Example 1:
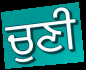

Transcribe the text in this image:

ਚੁਣੀ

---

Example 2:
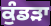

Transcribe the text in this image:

ਕੁੰਡੜਾ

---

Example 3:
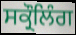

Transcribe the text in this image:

ਸਕ੍ਰੌਲਿੰਗ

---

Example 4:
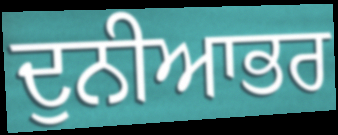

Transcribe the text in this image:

ਦੁਨੀਆਭਰ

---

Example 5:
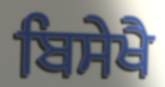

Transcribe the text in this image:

ਬਿਸੇਖੈ